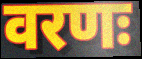
वरणः